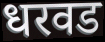
धरवड